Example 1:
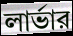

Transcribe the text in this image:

লার্ভার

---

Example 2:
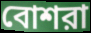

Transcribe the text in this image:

বোশরা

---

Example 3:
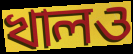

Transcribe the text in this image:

খালও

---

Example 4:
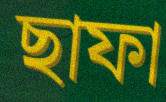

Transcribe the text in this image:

ছাফা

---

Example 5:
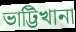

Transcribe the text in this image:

ভাট্টিখানা